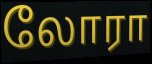
லோரா